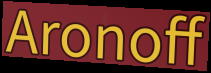
Aronoff